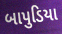
બાપુડિયા